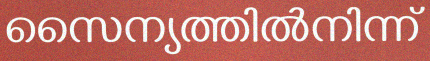
സൈന്യത്തിൽനിന്ന്